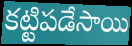
కట్టిపడేసాయి